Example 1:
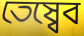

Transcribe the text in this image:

তেষ্বেব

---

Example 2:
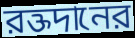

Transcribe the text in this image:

রক্তদানের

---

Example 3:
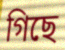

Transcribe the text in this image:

গিছে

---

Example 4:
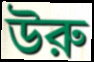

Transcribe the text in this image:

উরু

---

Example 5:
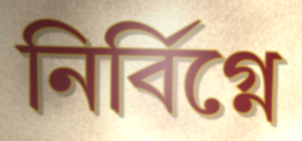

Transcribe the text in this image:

নির্বিগ্নে